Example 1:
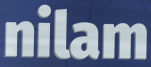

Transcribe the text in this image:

nilam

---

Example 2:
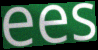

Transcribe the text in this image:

ees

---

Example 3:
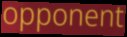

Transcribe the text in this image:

opponent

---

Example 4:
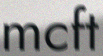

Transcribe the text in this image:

mcft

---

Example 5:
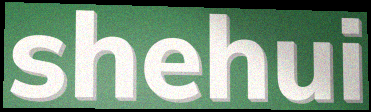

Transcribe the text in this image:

shehui